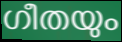
ഗീതയും